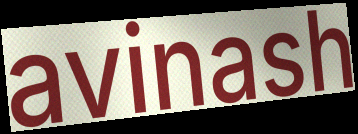
avinash